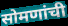
सोमणांची